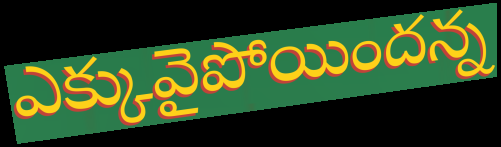
ఎక్కువైపోయిందన్న